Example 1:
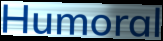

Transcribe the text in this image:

Humoral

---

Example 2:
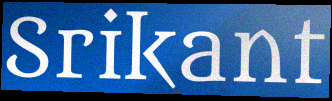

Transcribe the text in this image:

Srikant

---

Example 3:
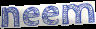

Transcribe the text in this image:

neem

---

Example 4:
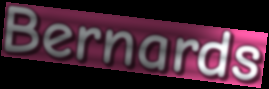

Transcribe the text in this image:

Bernards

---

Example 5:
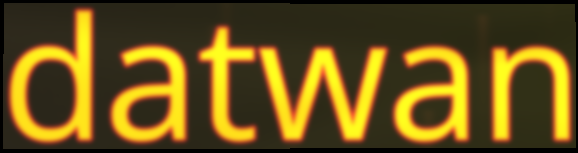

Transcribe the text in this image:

datwan